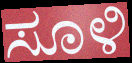
ಸೂಳಿ